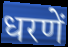
धरणें